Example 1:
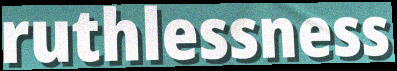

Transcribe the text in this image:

ruthlessness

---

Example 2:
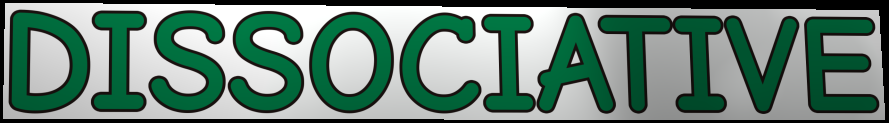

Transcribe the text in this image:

DISSOCIATIVE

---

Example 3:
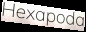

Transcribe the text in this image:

Hexapoda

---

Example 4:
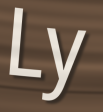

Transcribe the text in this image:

Ly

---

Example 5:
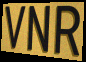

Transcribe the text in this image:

VNR